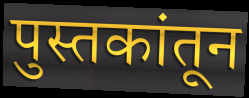
पुस्तकांतून